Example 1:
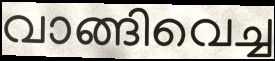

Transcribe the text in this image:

വാങ്ങിവെച്ച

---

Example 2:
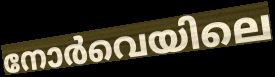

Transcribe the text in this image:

നോർവെയിലെ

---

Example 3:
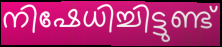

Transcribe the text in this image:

നിഷേധിച്ചിട്ടുണ്ട്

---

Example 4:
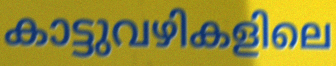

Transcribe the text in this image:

കാട്ടുവഴികളിലെ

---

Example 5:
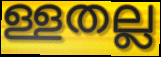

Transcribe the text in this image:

ള്ളതല്ല